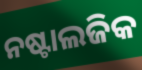
ନଷ୍ଟାଲଜିକ